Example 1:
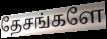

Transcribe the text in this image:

தேசங்களே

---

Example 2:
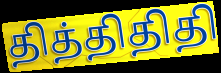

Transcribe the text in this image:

தித்திதிதி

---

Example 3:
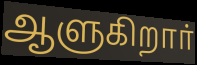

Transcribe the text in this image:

ஆளுகிறார்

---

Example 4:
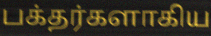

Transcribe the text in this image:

பக்தர்களாகிய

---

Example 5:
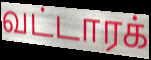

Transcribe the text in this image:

வட்டாரக்